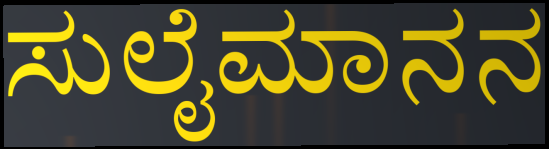
ಸುಲೈಮಾನನ